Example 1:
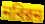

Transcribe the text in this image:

নবিরন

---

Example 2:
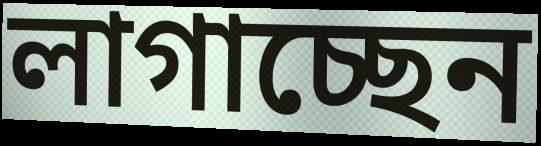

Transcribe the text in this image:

লাগাচ্ছেন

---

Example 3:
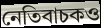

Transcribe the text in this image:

নেতিবাচকও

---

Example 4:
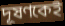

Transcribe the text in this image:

দূষণকেই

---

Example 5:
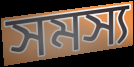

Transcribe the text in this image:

সমস্য